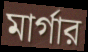
মার্গার